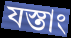
যস্তাং